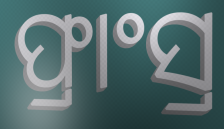
ଫ୍ରାଂସ୍ର